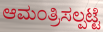
ಆಮಂತ್ರಿಸಲ್ಪಟ್ಟೆ